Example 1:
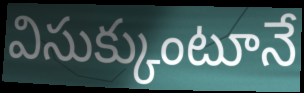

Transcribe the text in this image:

విసుక్కుంటూనే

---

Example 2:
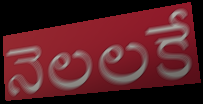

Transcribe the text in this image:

నెలలకే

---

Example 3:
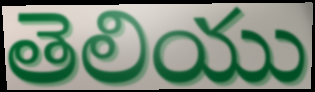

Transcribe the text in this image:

తెలియు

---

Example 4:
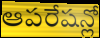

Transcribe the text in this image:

ఆపరేషన్లో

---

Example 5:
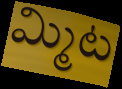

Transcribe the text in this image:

మ్మిట